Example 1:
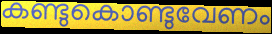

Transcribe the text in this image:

കണ്ടുകൊണ്ടുവേണം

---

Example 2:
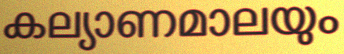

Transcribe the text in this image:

കല്യാണമാലയും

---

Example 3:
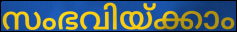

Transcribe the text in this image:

സംഭവിയ്ക്കാം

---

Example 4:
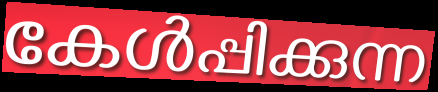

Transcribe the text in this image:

കേൾപ്പിക്കുന്ന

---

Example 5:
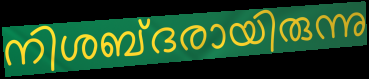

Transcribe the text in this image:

നിശബ്ദരായിരുന്നു